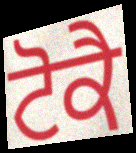
ਟੋਕੈ